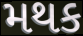
મથક